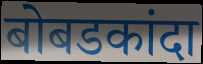
बोबडकांदा